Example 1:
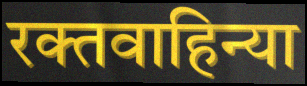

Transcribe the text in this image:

रक्तवाहिन्या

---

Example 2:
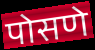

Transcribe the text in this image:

पोसणे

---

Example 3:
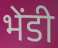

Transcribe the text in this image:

भेंडी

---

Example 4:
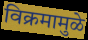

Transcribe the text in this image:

विक्रमामुळे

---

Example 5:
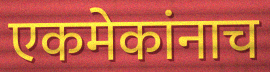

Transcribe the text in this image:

एकमेकांनाच